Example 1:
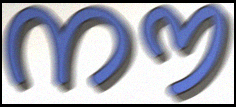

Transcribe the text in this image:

നൗ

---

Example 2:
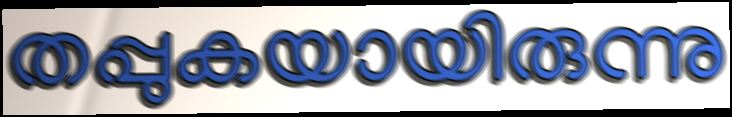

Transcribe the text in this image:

തപ്പുകയായിരുന്നു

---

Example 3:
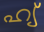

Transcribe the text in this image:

ഹ്യ്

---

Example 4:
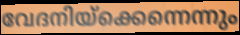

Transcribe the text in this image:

വേദനിയ്ക്കെന്നെന്നും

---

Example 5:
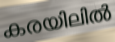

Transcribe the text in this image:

കരയിലിൽ